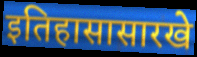
इतिहासासारखे